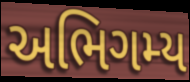
અભિગમ્ય